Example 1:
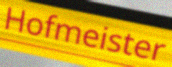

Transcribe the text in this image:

Hofmeister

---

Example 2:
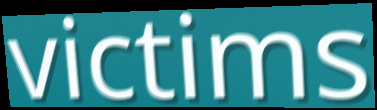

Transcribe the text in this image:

victims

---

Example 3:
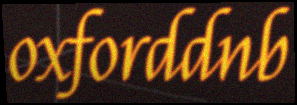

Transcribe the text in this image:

oxforddnb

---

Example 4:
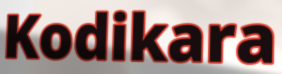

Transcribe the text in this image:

Kodikara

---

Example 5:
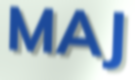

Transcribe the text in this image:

MAJ